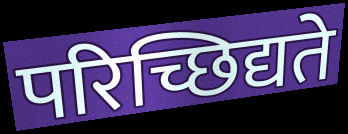
परिच्छिद्यते